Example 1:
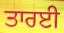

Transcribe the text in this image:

ਤਾਰਈ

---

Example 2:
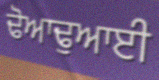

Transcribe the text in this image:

ਢੋਆਢੁਆਈ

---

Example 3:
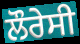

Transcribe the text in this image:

ਲੌਰੇਸੀ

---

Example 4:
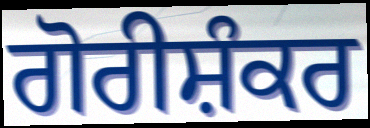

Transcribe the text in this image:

ਗੋਰੀਸ਼ੰਕਰ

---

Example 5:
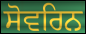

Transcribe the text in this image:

ਸੋਵਰਿਨ